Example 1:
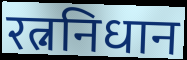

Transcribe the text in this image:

रत्ननिधान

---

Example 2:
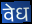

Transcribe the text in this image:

वेध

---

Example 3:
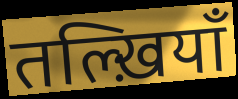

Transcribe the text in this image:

तल्ख़ियाँ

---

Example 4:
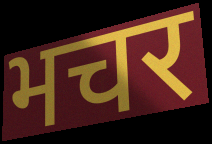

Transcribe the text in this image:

भचर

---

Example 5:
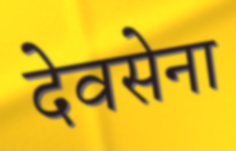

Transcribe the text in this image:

देवसेना